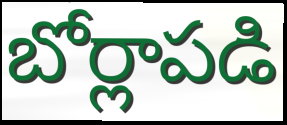
బోర్లాపడి